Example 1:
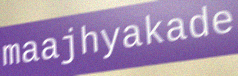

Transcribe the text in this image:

maajhyakade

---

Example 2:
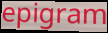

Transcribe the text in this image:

epigram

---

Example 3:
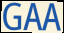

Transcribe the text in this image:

GAA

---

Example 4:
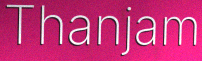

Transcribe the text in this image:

Thanjam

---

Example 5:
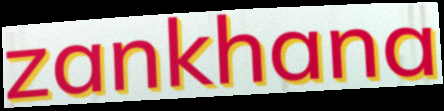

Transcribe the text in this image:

zankhana